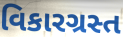
વિકારગ્રસ્ત